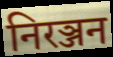
निरञ्जन